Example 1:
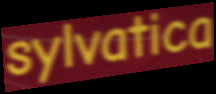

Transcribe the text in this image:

sylvatica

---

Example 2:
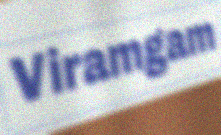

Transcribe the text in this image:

Viramgam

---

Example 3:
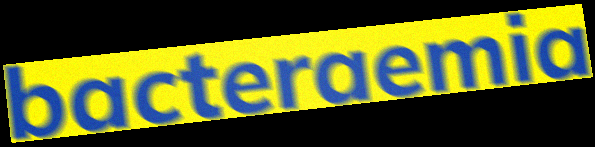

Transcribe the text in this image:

bacteraemia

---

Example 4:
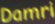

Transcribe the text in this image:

Damri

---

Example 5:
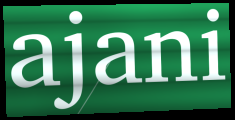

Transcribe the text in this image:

ajani